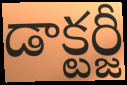
డాక్టర్జీ